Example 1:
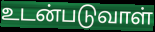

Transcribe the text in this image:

உடன்படுவாள்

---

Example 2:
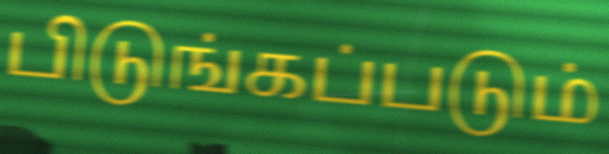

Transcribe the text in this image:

பிடுங்கப்படும்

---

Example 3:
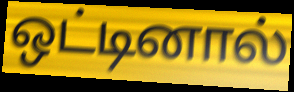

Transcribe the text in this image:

ஒட்டினால்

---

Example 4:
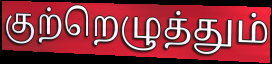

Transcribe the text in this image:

குற்றெழுத்தும்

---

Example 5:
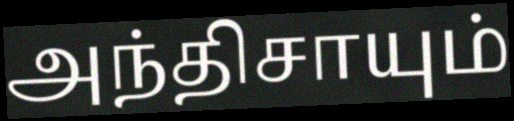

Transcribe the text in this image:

அந்திசாயும்